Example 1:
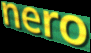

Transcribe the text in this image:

nero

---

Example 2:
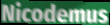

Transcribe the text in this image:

Nicodemus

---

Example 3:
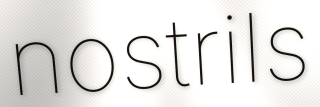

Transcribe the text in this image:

nostrils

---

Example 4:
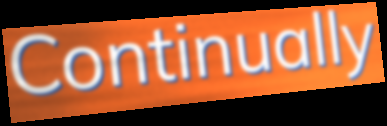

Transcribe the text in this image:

Continually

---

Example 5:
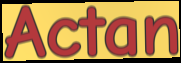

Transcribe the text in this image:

Actan